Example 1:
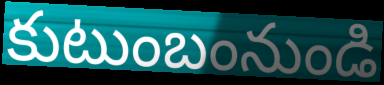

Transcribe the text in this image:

కుటుంబంనుండి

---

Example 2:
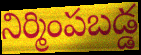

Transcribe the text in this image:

నిర్మింపబడ్డ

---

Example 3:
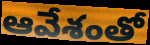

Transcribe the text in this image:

ఆవేశంతో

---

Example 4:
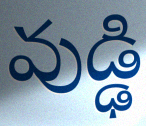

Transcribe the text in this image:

వుడ్ఢి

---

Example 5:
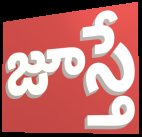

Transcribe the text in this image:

జూస్తే